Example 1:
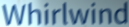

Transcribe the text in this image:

Whirlwind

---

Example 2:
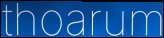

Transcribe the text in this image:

thoarum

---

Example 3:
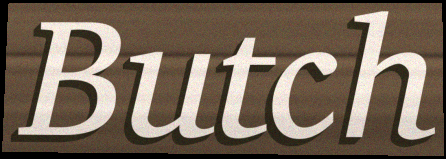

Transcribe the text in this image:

Butch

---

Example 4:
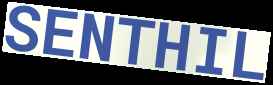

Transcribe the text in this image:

SENTHIL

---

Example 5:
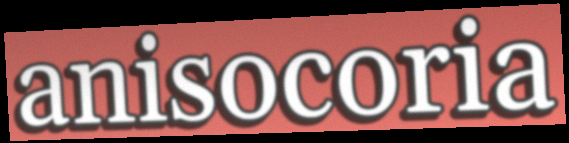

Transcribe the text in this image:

anisocoria